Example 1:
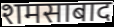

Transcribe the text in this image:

शमसाबाद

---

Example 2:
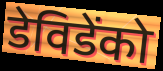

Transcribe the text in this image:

डेविडेंको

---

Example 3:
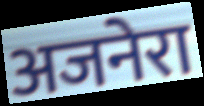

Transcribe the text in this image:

अजनेरा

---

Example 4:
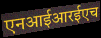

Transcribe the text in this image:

एनआईआरईएच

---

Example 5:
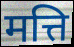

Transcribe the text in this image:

मत्ति